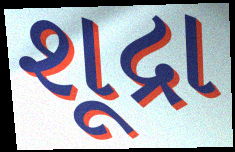
શૂદ્રા